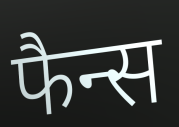
फैन्स